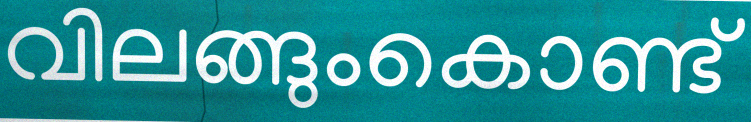
വിലങ്ങുംകൊണ്ട്